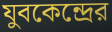
যুবকেন্দ্রের